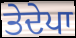
ਤੇਦੇਪਾ